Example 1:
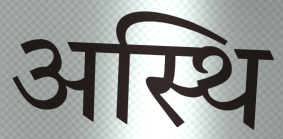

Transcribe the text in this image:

अस्थि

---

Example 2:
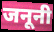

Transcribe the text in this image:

जनूनी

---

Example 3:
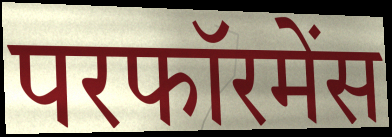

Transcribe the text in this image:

परफॉरमेंस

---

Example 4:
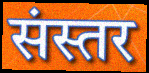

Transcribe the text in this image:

संस्तर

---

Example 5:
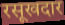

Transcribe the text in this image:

रसूखदार